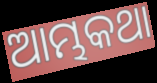
ଆମ୍ଭକଥା